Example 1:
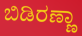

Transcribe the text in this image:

ಬಿಡಿರಣ್ಣಾ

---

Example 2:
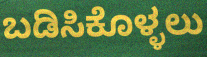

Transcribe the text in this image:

ಬಡಿಸಿಕೊಳ್ಳಲು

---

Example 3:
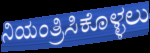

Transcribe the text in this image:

ನಿಯಂತ್ರಿಸಿಕೊಳ್ಳಲು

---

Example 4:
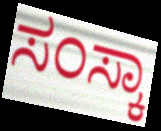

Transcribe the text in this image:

ಸಂಸ್ಕಾ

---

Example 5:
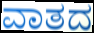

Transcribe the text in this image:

ವಾತದ